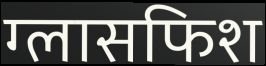
ग्लासफिश